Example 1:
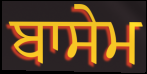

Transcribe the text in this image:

ਬਾਸੇਮ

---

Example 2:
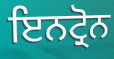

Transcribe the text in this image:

ਇਨਟ੍ਰੋਨ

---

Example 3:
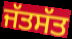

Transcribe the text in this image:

ਜੱਤਸੱਤ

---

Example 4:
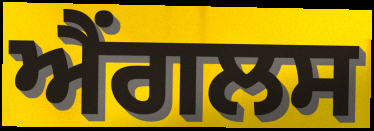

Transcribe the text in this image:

ਐਂਗਲਸ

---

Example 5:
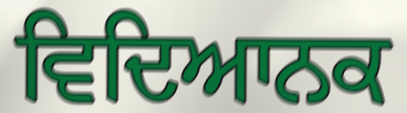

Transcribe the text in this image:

ਵਿਦਿਆਨਕ